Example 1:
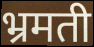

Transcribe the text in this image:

भ्रमती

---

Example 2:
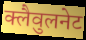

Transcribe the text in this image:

क्लैवुलनेट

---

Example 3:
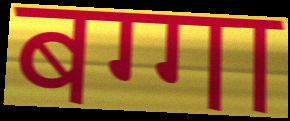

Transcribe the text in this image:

बग्गा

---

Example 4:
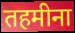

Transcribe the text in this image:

तहमीना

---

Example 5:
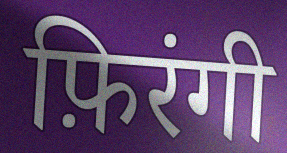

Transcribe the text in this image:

फ़िरंगी